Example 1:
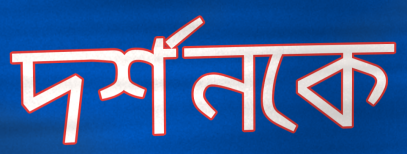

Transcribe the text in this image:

দর্শনকে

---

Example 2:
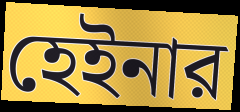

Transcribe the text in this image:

হেইনার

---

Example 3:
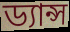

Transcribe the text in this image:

ড্যান্স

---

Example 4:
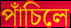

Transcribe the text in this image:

পাঁচিলে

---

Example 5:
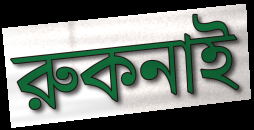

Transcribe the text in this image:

রুকনাই